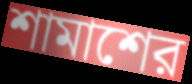
শামাশের